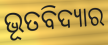
ଭୂତବିଦ୍ୟାର